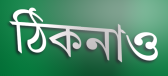
ঠিকনাও